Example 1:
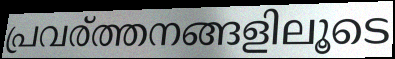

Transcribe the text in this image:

പ്രവര്ത്തനങ്ങളിലൂടെ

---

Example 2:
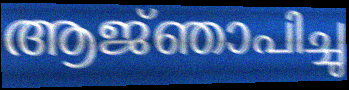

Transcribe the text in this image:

ആജ്‌ഞാപിച്ചു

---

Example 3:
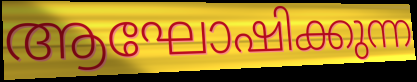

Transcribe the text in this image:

ആഘോഷിക്കുന്ന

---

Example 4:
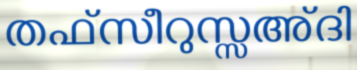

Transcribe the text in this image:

തഫ്സീറുസ്സഅ്ദി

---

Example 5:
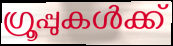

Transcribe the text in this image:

ഗ്രൂപ്പുകൾക്ക്